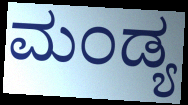
ಮಂಡ್ಯ